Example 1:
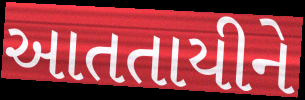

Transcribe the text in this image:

આતતાયીને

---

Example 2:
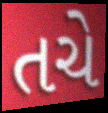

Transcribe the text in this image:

તચે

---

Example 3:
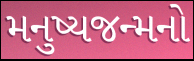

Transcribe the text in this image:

મનુષ્યજન્મનો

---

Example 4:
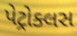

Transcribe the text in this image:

પેટ્રોક્લસ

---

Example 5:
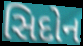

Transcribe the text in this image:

સિદોન